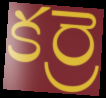
కర్రె